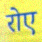
रोए